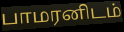
பாமரனிடம்